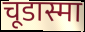
चूडास्मा